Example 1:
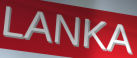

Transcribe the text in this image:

LANKA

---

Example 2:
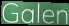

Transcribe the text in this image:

Galen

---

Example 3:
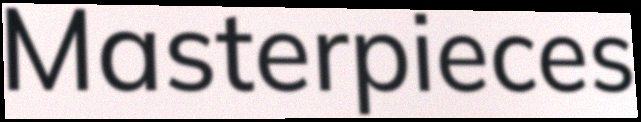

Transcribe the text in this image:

Masterpieces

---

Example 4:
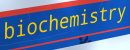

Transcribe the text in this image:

biochemistry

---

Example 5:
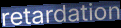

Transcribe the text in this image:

retardation